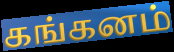
கங்கனம்